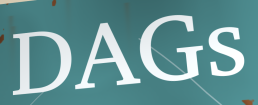
DAGs